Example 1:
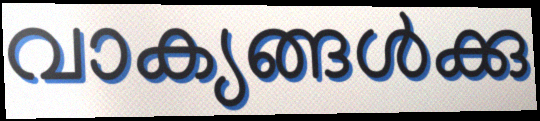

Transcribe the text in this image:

വാക്യങ്ങൾക്കു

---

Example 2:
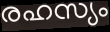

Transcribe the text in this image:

രഹസ്യം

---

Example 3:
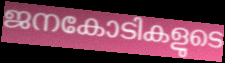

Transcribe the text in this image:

ജനകോടികളുടെ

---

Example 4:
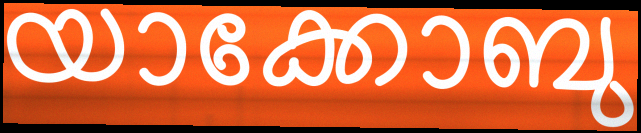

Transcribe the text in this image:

യാക്കോബു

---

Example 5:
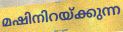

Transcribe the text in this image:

മഷിനിറയ്ക്കുന്ന